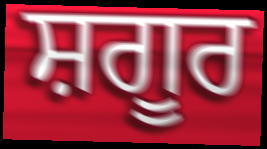
ਸ਼ਗੂਰ